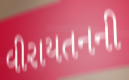
વીરાયતનની